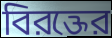
বিরক্তের